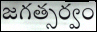
జగత్సర్వం